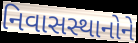
નિવાસસ્થાનોને